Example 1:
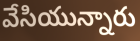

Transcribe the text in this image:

వేసియున్నారు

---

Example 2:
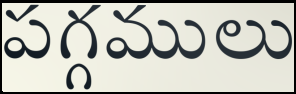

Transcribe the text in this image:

పగ్గములు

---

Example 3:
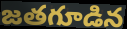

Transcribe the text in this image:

జతగూడిన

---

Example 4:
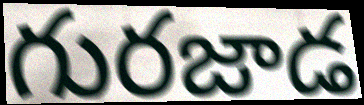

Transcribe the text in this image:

గురజాడ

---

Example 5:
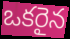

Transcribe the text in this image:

ఒకరైన